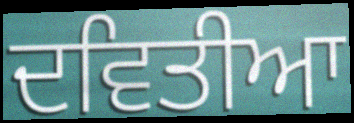
ਦਵਿਤੀਆ